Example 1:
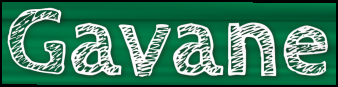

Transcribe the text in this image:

Gavane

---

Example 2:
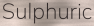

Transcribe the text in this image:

Sulphuric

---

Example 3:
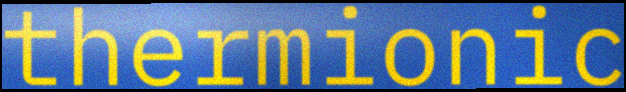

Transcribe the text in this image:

thermionic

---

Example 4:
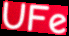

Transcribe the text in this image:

UFe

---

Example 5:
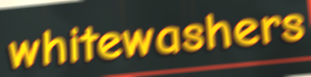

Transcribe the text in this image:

whitewashers